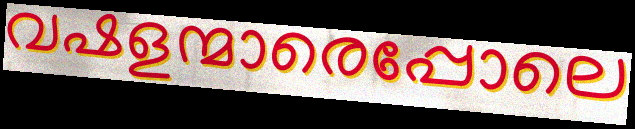
വഷളന്മാരെപ്പോലെ